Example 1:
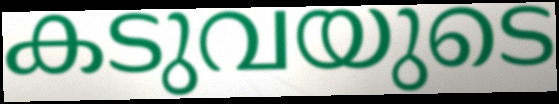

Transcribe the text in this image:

കടുവയുടെ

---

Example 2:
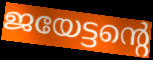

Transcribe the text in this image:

ജയേട്ടന്റെ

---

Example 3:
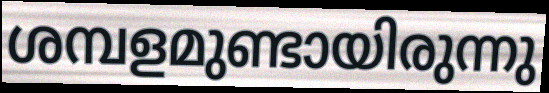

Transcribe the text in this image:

ശമ്പളമുണ്ടായിരുന്നു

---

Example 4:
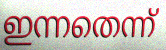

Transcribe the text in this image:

ഇന്നതെന്ന്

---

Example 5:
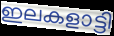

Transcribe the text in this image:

ഇലകളാട്ടി